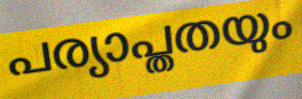
പര്യാപ്തതയും